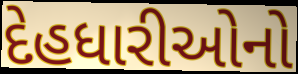
દેહધારીઓનો